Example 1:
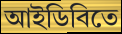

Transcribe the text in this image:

আইডিবিতে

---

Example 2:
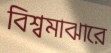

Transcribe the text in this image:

বিশ্বমাঝারে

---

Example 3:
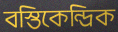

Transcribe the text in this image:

বস্তিকেন্দ্রিক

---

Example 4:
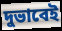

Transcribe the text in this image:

দুভাবেই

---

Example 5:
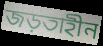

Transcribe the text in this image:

জড়তাহীন